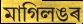
মাগিলঙৰ